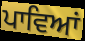
ਪਾਵਿਆਂ